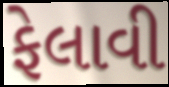
ફેલાવી